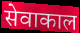
सेवाकाल